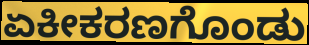
ಏಕೀಕರಣಗೊಂಡು